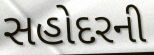
સહોદરની